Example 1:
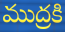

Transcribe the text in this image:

ముద్రకి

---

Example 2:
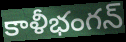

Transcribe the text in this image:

కాళీభంగన్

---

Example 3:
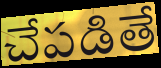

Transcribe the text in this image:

చేపడితే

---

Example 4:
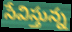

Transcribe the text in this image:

సేవిస్తున్న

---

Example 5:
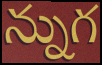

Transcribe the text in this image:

న్నుగ